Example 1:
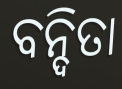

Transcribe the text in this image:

ବନ୍ଦିତା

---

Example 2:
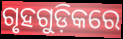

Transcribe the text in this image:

ଗୃହଗୁଡ଼ିକରେ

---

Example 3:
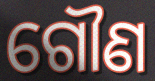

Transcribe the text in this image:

ଗୌଣ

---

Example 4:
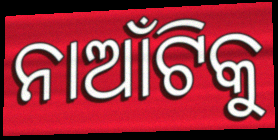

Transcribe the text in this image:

ନାଆଁଟିକୁ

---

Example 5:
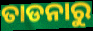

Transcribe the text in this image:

ତାଡନାରୁ